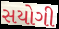
સયોગી